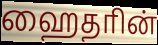
ஹைதரின்